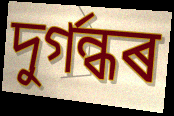
দুৰ্গন্ধৰ